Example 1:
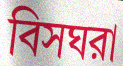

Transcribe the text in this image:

বিসঘরা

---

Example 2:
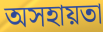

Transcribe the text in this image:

অসহায়তা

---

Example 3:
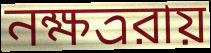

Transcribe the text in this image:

নক্ষত্ররায়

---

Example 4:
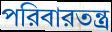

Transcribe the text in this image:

পরিবারতন্ত্র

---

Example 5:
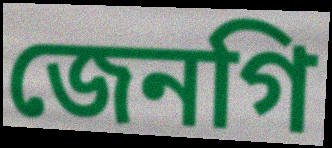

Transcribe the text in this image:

জেনগি